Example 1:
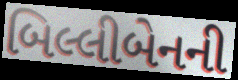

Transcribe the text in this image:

બિલ્લીબેનની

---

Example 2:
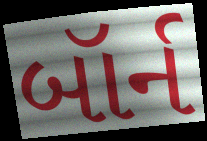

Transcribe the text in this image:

બૉર્ન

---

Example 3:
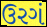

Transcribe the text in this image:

ઉરગં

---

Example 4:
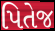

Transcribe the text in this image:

પિતેજ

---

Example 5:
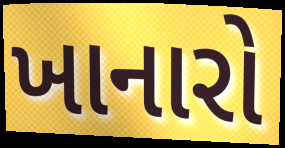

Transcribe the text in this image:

ખાનારો